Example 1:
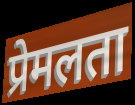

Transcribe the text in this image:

प्रेमलता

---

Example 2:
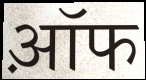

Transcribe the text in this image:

ऑ़फ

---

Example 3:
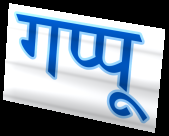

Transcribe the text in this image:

गप्पू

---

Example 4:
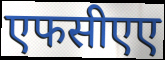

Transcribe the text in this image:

एफसीएए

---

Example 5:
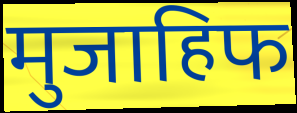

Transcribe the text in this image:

मुजाहिफ